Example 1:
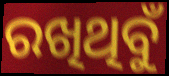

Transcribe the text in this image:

ରଖିଥିବୁଁ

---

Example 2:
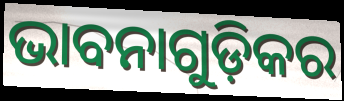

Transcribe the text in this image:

ଭାବନାଗୁଡ଼ିକର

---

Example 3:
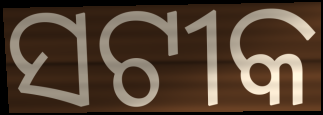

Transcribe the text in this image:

ସଟୀକ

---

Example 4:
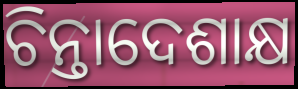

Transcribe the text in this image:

ଚିନ୍ତାଦେଶାକ୍ଷ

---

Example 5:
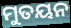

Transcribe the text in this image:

ମୁତୟନ